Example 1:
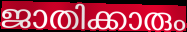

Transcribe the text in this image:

ജാതിക്കാരും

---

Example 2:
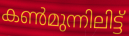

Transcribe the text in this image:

കൺമുന്നിലിട്ട്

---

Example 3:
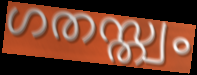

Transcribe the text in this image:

ഗതസ്ത്വം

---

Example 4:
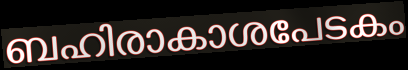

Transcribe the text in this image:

ബഹിരാകാശപേടകം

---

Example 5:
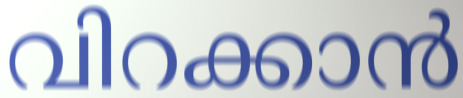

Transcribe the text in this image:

വിറക്കാൻ